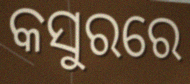
କସୁରରେ